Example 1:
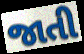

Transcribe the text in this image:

જાતી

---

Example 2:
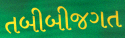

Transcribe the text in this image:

તબીબીજગત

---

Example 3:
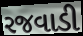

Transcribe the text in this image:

રજવાડી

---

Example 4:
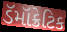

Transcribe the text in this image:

ડૅમૉક્રેટિક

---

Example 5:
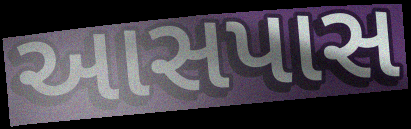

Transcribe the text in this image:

આસપાસ